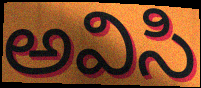
అవిసి